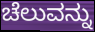
ಚೆಲುವನ್ನು